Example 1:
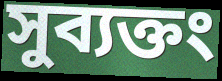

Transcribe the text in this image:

সুব্যক্তং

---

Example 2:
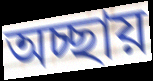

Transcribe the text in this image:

অচ্ছায়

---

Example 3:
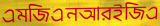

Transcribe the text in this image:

এমজিএনআরইজিএ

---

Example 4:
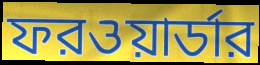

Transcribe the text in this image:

ফরওয়ার্ডার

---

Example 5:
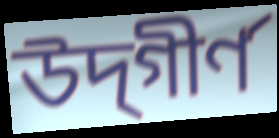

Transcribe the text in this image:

উদ্‌গীর্ণ